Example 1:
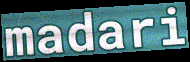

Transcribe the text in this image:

madari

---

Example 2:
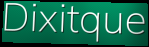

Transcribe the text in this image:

Dixitque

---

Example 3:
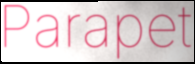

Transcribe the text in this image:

Parapet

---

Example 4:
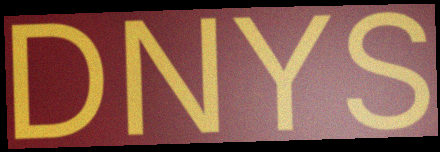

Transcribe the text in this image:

DNYS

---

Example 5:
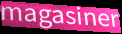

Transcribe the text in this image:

magasiner